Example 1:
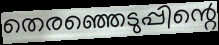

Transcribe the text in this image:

തെരഞ്ഞെടുപ്പിന്റെ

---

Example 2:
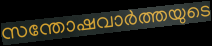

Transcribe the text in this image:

സന്തോഷവാർത്തയുടെ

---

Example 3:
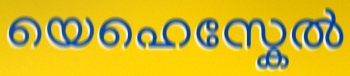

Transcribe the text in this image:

യെഹെസ്കേൽ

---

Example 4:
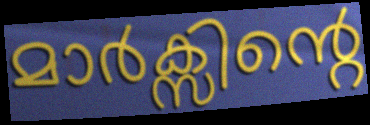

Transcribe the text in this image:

മാർക്സിന്റെ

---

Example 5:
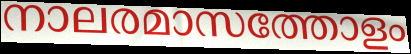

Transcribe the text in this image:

നാലരമാസത്തോളം